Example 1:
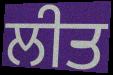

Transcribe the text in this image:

ਲੀਤ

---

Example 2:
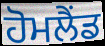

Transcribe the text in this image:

ਹੋਮਲੈਂਡ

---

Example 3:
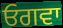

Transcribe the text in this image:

ਓਗਵਾ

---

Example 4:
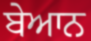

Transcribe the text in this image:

ਬੇਆਨ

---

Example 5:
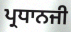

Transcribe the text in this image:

ਪ੍ਰਧਾਨਜੀ